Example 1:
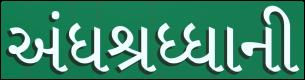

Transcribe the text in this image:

અંધશ્રધ્ધાની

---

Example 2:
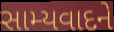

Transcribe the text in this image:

સામ્યવાદને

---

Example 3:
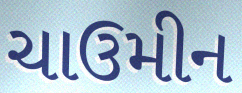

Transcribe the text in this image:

ચાઉમીન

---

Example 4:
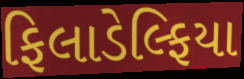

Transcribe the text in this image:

ફિલાડેલ્ફિયા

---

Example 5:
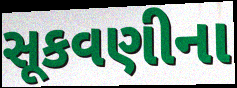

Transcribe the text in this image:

સૂકવણીના